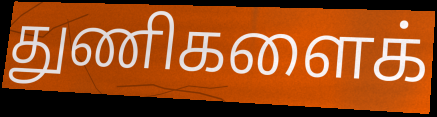
துணிகளைக்